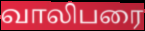
வாலிபரை